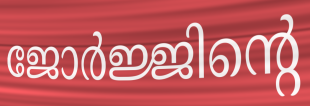
ജോർജ്ജിന്റെ